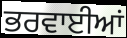
ਭਰਵਾਈਆਂ